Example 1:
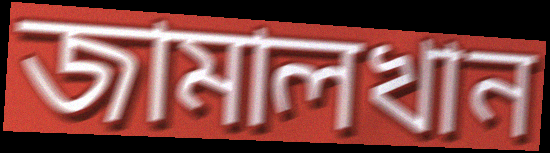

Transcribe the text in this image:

জামালখান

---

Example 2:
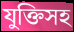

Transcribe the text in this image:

যুক্তিসহ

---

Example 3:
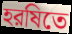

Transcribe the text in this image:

হরষিতে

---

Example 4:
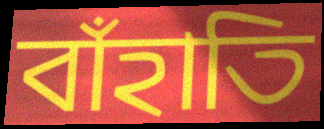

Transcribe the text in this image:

বাঁহাতি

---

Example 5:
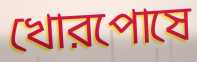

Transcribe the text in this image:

খোরপোষে